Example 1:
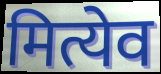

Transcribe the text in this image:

मित्येव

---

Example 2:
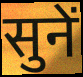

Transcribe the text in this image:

सुनें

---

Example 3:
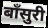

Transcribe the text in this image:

बॉंसुरी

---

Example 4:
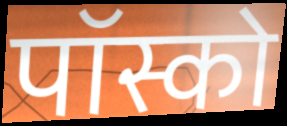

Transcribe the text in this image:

पॉस्‍को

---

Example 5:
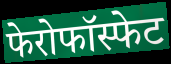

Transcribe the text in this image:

फेरोफॉस्फेट